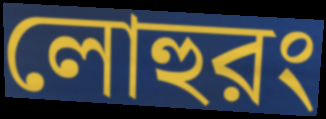
লোহুরং